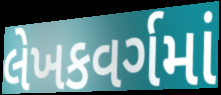
લેખકવર્ગમાં